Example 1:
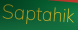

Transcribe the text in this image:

Saptahik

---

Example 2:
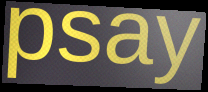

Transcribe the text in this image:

psay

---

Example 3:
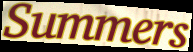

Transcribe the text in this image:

Summers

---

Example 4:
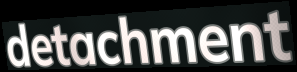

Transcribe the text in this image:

detachment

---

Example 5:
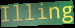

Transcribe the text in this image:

Illing